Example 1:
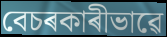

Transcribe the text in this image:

বেচৰকাৰীভাৱে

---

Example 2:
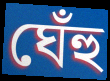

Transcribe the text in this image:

ঘেঁহু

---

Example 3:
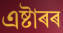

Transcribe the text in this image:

এষ্টাৰৰ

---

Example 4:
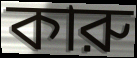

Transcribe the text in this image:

কাৰু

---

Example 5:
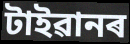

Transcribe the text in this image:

টাইৱানৰ